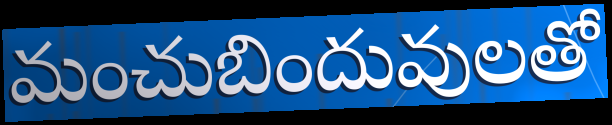
మంచుబిందువులతో